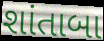
શાંતાબા